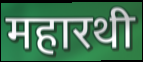
महारथी